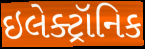
ઇલેક્ટ્રૉનિક